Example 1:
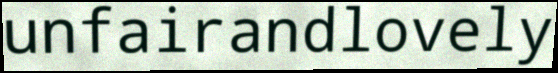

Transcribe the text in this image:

unfairandlovely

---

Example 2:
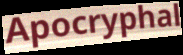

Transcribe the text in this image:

Apocryphal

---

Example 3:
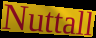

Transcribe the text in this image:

Nuttall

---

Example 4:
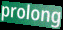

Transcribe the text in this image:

prolong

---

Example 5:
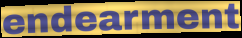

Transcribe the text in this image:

endearment